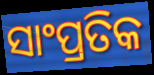
ସାଂପ୍ରତିକ